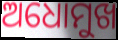
ଅଧୋମୁଖ